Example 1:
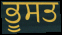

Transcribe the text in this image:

ਭੂਸਤ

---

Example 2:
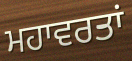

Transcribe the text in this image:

ਮਹਾਵਰਤਾਂ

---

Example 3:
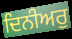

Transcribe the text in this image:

ਦਿਨੀਅਰੁ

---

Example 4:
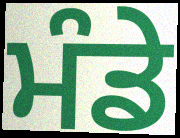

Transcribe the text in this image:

ਮੰਡੇ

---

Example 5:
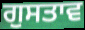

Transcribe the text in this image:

ਗੁਸਤਾਵ